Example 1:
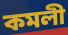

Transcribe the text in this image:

কমলী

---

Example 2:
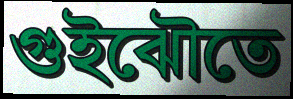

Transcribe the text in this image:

গুইঝৌতে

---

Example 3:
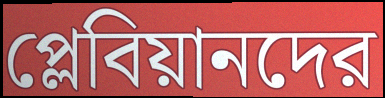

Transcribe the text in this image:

প্লেবিয়ানদের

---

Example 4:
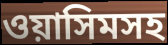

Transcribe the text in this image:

ওয়াসিমসহ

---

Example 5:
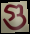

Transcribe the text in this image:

গু